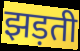
झड़ती